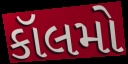
કૉલમો